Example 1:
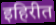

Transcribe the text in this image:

इहिरीत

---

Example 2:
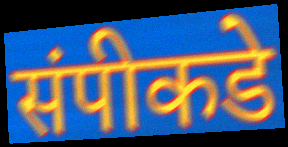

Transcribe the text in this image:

संपीकडे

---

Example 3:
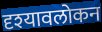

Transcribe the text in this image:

दृश्‍यावलोकन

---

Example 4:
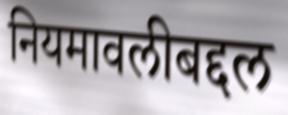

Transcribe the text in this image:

नियमावलीबद्दल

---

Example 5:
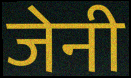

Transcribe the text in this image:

जेनी